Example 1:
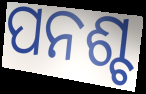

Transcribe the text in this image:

ପନଶ୍ଚ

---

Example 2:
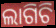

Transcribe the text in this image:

ଲାଗିଚି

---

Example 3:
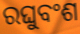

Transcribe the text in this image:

ରଘୁବଂଶ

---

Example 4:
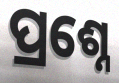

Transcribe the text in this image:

ପ୍ରଶ୍ନେ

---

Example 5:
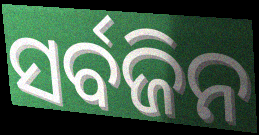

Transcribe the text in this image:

ସର୍ବଜିନ